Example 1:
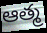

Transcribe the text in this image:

ఆత్మ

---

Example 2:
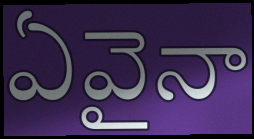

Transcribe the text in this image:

ఏవైనా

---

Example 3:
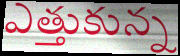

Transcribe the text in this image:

ఎత్తుకున్న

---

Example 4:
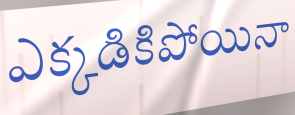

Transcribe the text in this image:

ఎక్కడికిపోయినా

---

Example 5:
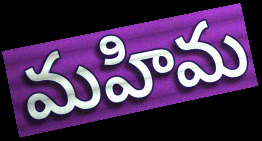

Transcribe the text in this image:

మహిమ